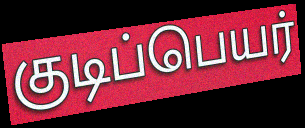
குடிப்பெயர்